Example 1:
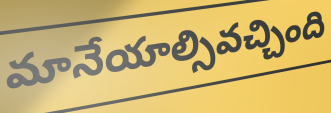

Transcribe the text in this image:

మానేయాల్సివచ్చింది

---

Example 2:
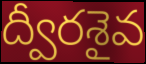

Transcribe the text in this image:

ద్వీరశైవ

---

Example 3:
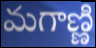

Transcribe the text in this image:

మగాణ్ణి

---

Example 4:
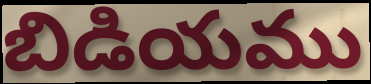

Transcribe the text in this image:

బిడియము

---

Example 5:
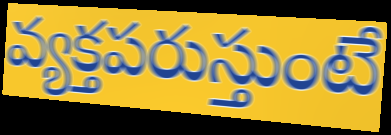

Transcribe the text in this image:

వ్యక్తపరుస్తుంటే